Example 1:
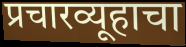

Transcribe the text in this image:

प्रचारव्यूहाचा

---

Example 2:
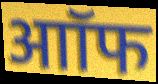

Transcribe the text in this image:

आॉफ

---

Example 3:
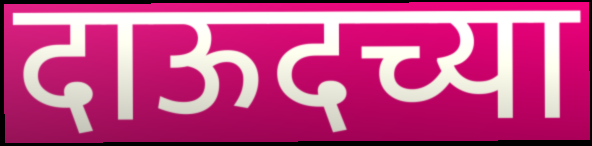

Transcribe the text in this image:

दाऊदच्या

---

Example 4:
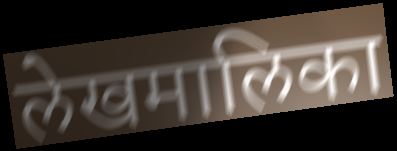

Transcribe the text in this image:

लेखमालिका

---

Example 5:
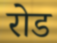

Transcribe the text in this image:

रोड